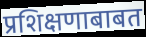
प्रशिक्षणाबाबत